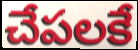
చేపలకే